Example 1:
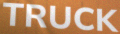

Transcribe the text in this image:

TRUCK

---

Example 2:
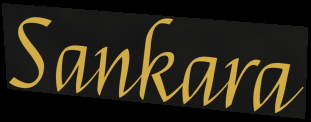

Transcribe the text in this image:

Sankara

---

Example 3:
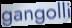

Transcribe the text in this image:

gangolli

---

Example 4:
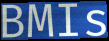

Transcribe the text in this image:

BMIs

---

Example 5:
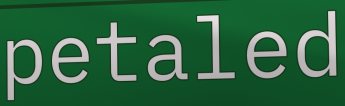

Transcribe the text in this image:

petaled